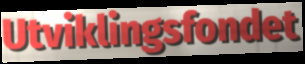
Utviklingsfondet